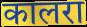
कालरा